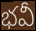
భవీ